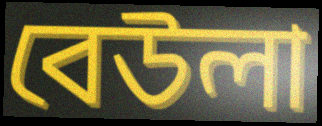
বেউলা